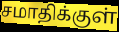
சமாதிக்குள்